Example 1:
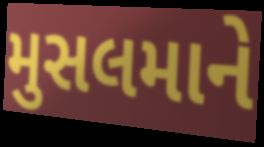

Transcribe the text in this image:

મુસલમાને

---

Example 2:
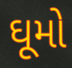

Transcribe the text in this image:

ઘૂમો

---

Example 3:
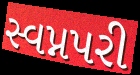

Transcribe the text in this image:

સ્વપ્નપરી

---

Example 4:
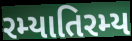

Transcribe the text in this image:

રમ્યાતિરમ્ય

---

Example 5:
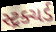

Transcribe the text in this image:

સ્ટ્રક્ચર્ડ